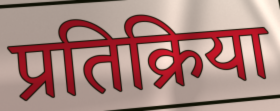
प्रतिक्रिया